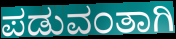
ಪಡುವಂತಾಗಿ